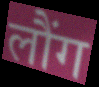
लौंग